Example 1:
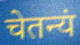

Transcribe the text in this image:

चेतन्यं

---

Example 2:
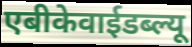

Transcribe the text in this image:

एबीकेवाईडब्ल्यू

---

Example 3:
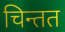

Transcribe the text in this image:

चिन्तत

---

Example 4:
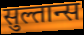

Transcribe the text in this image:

सुल्तान्स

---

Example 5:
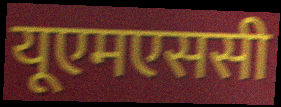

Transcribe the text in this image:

यूएमएससी